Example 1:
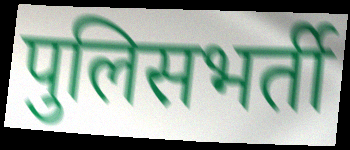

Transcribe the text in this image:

पुलिसभर्ती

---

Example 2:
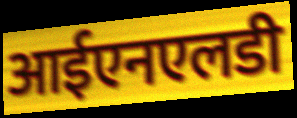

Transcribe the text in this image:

आईएनएलडी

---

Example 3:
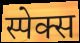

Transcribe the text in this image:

स्पेक्स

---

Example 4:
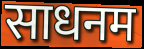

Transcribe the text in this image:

साधनम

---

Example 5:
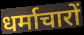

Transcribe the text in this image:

धर्माचारों